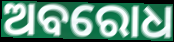
ଅବରୋଧ